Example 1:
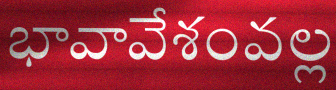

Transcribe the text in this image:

భావావేశంవల్ల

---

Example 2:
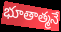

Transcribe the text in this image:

భూతాత్మనే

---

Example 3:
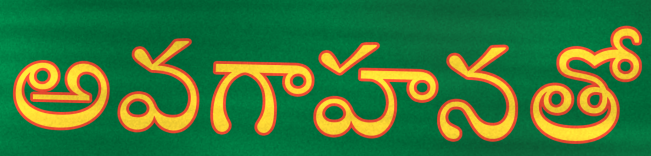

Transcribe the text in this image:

అవగాహనతో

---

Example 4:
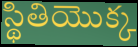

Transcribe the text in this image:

స్థితియొక్క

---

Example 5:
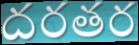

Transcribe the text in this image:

దరతర